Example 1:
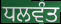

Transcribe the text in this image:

ਧਲਵੰਤ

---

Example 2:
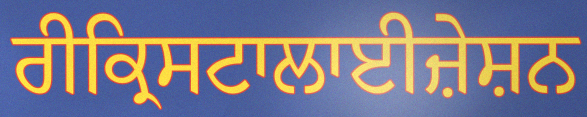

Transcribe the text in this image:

ਰੀਕ੍ਰਿਸਟਾਲਾਈਜ਼ੇਸ਼ਨ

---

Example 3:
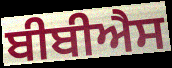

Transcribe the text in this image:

ਬੀਬੀਐਸ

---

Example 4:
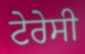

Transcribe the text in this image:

ਟੇਰੇਸੀ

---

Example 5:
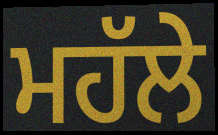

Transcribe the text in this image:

ਮਹੱਲੇ